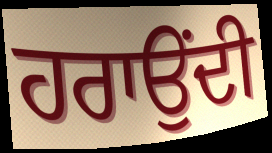
ਹਰਾਉਂਦੀ